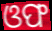
ଓଫ